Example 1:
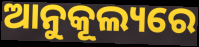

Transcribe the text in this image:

ଆନୁକୂଲ୍ୟରେ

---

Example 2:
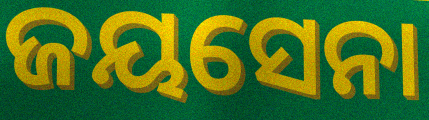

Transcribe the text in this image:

ଜୟସେନା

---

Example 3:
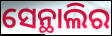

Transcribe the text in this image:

ସେନ୍ଥାଲିର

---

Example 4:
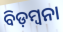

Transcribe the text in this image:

ବିଡ଼ମ୍ୱନା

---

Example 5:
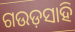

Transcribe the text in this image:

ଗଉଡ଼ସାହି